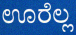
ಊರೆಲ್ಲ